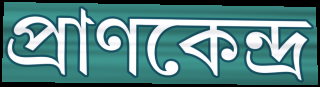
প্রাণকেন্দ্র